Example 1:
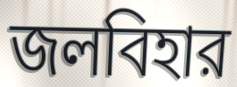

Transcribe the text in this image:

জলবিহার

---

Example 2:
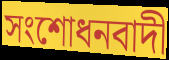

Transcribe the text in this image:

সংশোধনবাদী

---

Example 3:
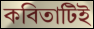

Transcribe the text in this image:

কবিতাটিই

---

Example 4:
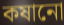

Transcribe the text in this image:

কষানো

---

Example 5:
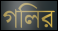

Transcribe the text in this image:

গলির